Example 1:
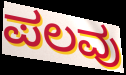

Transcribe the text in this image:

ಪಲವು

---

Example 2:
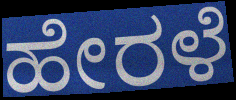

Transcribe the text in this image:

ಹೇರಳೆ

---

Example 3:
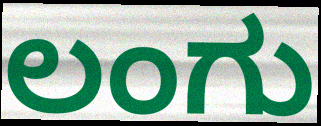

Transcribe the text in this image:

ಲಂಗು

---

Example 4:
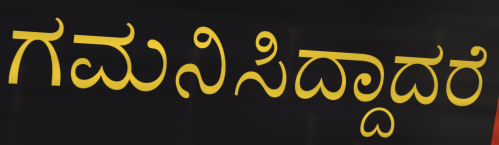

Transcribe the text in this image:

ಗಮನಿಸಿದ್ದಾದರೆ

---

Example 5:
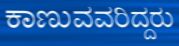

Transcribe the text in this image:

ಕಾಣುವವರಿದ್ದರು